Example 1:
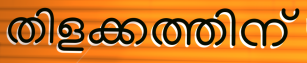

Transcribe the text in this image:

തിളക്കത്തിന്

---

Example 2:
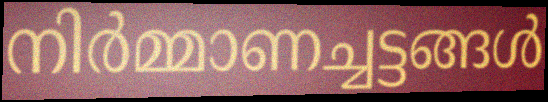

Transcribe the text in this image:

നിർമ്മാണച്ചട്ടങ്ങൾ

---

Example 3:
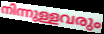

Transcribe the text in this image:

നിന്നുള്ളവരും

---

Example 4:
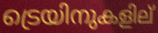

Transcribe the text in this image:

ട്രെയിനുകളില്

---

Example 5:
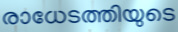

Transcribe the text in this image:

രാധേടത്തിയുടെ